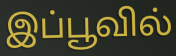
இப்பூவில்